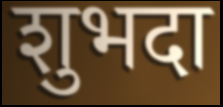
शुभदा